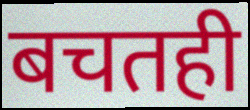
बचतही